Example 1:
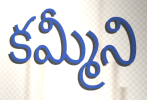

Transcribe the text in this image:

కమ్మీని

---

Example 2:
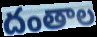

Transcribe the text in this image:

దంతాల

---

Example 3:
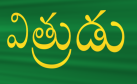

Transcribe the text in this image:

విత్రుడు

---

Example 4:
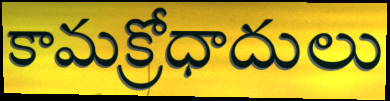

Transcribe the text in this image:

కామక్రోధాదులు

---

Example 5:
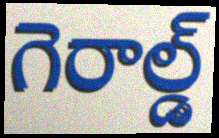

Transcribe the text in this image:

గెరాల్డ్